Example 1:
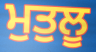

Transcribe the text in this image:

ਮੁਤੁਲੂ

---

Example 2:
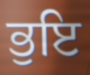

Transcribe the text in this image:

ਭੁਇ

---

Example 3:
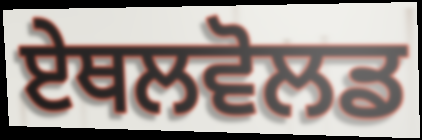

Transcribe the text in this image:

ਏਥਲਵੋਲਡ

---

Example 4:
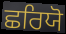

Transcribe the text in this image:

ਛਰਿਯੋ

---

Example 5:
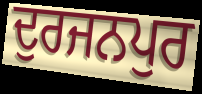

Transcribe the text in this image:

ਦੁਰਜਨਪੁਰ